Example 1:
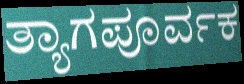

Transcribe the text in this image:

ತ್ಯಾಗಪೂರ್ವಕ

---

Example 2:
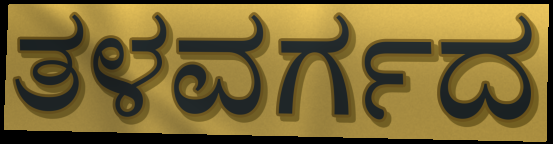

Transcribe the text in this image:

ತಳವರ್ಗದ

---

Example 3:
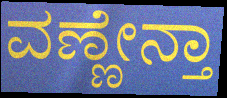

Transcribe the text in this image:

ವಣ್ಣೇನ್ತಾ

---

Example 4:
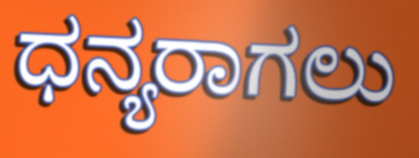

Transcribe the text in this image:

ಧನ್ಯರಾಗಲು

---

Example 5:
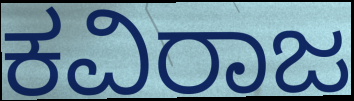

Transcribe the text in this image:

ಕವಿರಾಜ